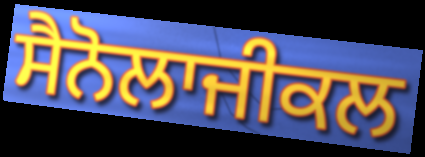
ਸੈਨੋਲਾਜੀਕਲ